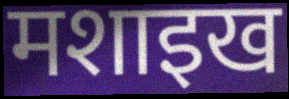
मशाइख